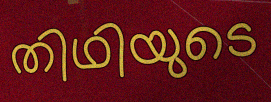
തിഥിയുടെ